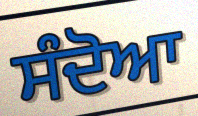
ਸੰਦੋਆ